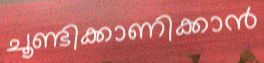
ചൂണ്ടിക്കാണിക്കാൻ